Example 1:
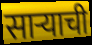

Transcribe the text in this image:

सार्‍याची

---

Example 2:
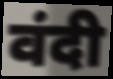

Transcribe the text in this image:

वंदी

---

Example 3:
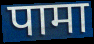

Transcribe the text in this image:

पामा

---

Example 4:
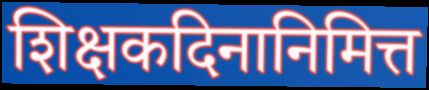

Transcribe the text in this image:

शिक्षकदिनानिमित्त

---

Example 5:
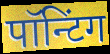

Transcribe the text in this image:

पॉन्टिंग